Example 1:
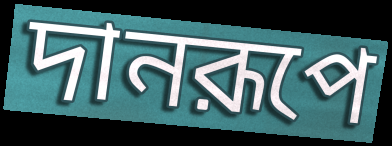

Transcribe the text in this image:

দানরূপে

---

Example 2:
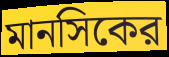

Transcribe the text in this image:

মানসিকের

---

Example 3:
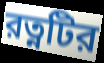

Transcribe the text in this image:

রত্নটির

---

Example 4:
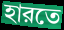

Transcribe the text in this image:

হারতে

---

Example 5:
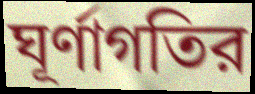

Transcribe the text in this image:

ঘূর্ণাগতির